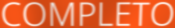
COMPLETO